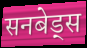
सनबेड्स